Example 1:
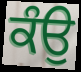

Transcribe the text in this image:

ਕੰਉ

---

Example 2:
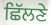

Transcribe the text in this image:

ਛਿੱਲਣੇ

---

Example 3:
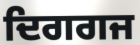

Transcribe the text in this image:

ਦਿਗਗਜ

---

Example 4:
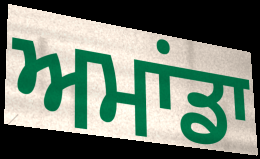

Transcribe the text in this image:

ਅਮਾਂਡਾ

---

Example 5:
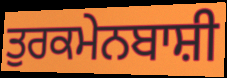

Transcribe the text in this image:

ਤੁਰਕਮੇਨਬਾਸ਼ੀ